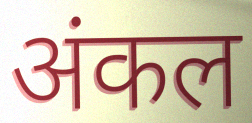
अंकल